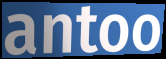
antoo